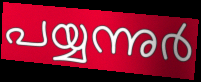
പയ്യന്നുർ